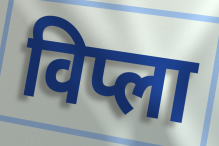
विप्ला